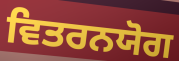
ਵਿਤਰਨਯੋਗ